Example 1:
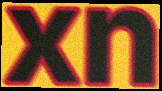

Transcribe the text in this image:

xn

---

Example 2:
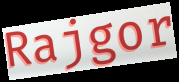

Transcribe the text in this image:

Rajgor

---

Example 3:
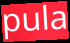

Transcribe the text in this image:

pula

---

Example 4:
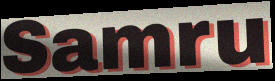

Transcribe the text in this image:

Samru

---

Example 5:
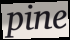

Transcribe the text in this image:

pine